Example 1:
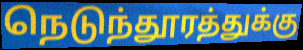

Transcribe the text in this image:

நெடுந்தூரத்துக்கு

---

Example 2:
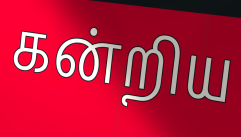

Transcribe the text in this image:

கன்றிய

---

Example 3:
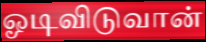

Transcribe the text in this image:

ஓடிவிடுவான்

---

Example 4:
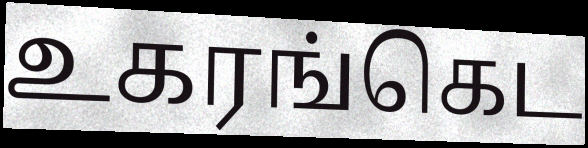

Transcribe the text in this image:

உகரங்கெட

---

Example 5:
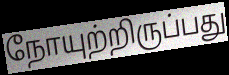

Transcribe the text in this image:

நோயுற்றிருப்பது